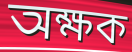
অক্ষক